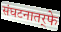
संघटनातर्फे